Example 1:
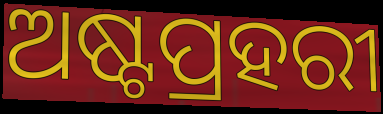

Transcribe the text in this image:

ଅଷ୍ଟପ୍ରହରୀ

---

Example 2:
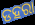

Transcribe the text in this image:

ଡହରା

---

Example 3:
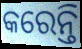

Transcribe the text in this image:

କରେନ୍ତି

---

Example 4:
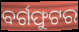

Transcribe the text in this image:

ବର୍ଗଫୁଟର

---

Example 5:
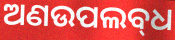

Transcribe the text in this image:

ଅଣଉପଲବ୍‌ଧ